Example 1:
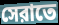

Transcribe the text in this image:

সেরাতে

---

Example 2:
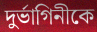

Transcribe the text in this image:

দুর্ভাগিনীকে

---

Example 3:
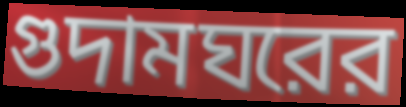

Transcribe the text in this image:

গুদামঘরের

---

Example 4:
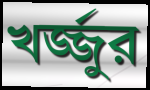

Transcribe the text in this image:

খর্জ্জুর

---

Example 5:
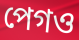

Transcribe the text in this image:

পেগও